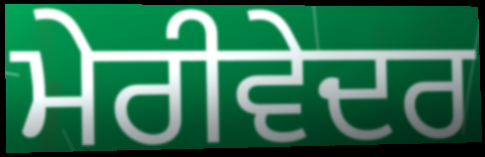
ਮੇਰੀਵੇਦਰ